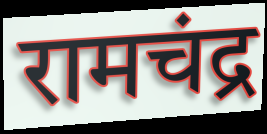
रामचंद्र